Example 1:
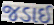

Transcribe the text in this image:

જડાઈ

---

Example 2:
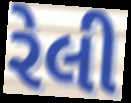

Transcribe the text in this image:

રેલી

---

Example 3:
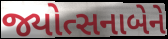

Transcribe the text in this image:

જ્યોત્સનાબેને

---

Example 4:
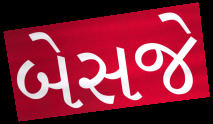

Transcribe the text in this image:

બેસજે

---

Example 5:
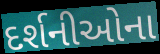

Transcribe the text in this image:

દર્શનીઓના